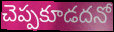
చెప్పకూడదనో